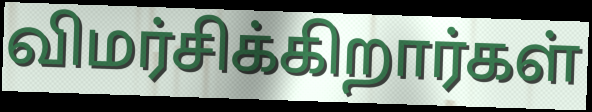
விமர்சிக்கிறார்கள்